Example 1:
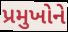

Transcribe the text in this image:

પ્રમુખોને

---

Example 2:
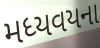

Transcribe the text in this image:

મધ્યવયના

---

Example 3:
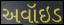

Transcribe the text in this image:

અવૉઇડ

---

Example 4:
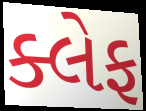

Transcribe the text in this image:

ક્લેફ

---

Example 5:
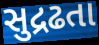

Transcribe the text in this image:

સુદ્રઢતા